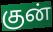
குன்